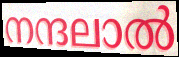
നന്ദലാൽ